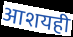
आशयही